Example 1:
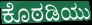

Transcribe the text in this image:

ಕೊಠಡಿಯು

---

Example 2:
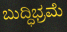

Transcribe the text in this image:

ಬುದ್ಧಿಭ್ರಮೆ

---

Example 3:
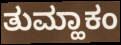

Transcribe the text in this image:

ತುಮ್ಹಾಕಂ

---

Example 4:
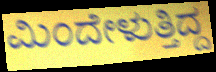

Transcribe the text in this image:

ಮಿಂದೇಳುತ್ತಿದ್ದ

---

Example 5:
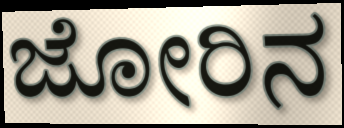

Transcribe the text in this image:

ಜೋರಿನ